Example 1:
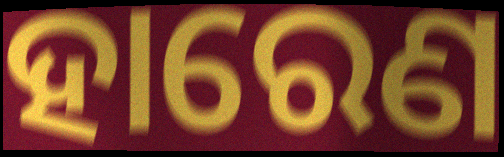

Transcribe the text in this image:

ହାରେଣ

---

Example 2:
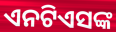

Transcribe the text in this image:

ଏନଟିଏସଙ୍କ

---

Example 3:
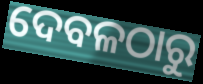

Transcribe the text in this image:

ଦେବଳଠାରୁ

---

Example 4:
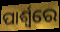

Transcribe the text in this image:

ପାର୍ଶ୍ୱରେ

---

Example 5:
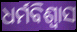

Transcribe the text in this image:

ଧର୍ମବିଶ୍ଵାସ